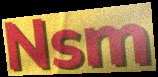
Nsm